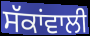
ਸੱਕਾਂਵਾਲੀ